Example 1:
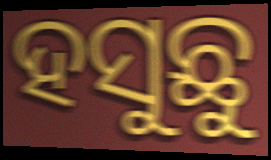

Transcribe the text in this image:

ହସୁଛୁ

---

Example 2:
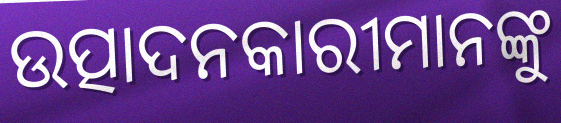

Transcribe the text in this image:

ଉତ୍ପାଦନକାରୀମାନଙ୍କୁ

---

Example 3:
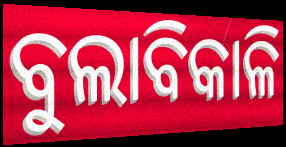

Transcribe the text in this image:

ବୁଲାବିକାଳି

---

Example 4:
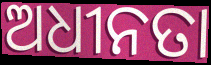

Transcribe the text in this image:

ଅଧୀନତା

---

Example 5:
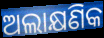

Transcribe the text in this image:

ଅଲାକ୍ଷଣିକ